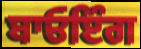
ਬਾਓਇੰਗ